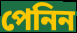
পেনিন